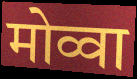
मोव्वा